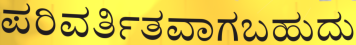
ಪರಿವರ್ತಿತವಾಗಬಹುದು